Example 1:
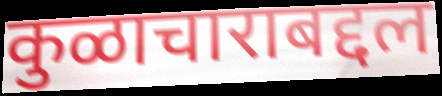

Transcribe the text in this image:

कुळाचाराबद्दल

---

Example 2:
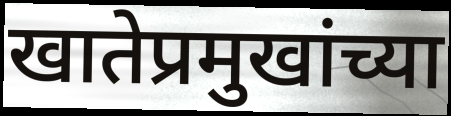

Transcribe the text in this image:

खातेप्रमुखांच्या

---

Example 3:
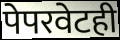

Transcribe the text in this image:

पेपरवेटही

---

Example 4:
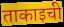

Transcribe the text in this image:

ताकाइची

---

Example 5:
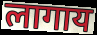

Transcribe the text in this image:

लागाय